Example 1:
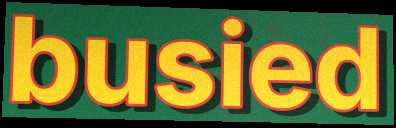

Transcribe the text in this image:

busied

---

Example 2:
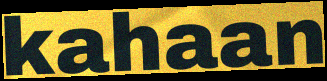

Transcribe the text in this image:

kahaan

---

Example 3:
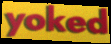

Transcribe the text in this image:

yoked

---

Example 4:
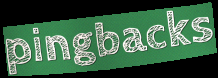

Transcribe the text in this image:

pingbacks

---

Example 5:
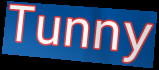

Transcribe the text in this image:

Tunny